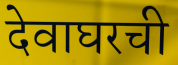
देवाघरची